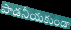
పాడనీయకుండా